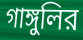
গাঙ্গুলির